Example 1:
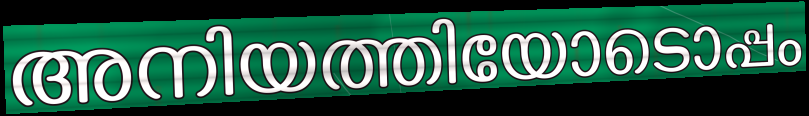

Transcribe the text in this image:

അനിയത്തിയോടൊപ്പം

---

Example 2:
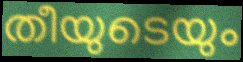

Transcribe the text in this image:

തീയുടെയും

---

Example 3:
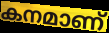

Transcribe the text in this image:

കനമാണ്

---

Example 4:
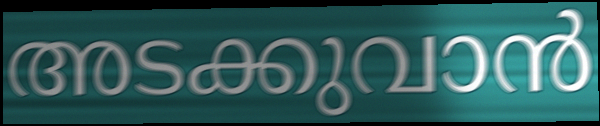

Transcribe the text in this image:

അടക്കുവാൻ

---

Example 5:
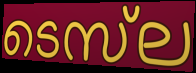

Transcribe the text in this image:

ടെസ്‌ല